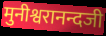
मुनीश्वरानन्दजी